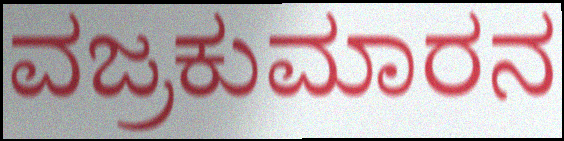
ವಜ್ರಕುಮಾರನ